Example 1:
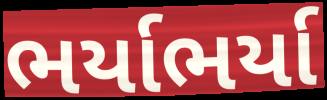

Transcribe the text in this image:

ભર્યાભર્યા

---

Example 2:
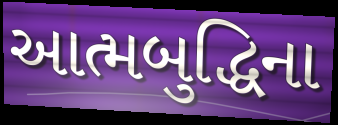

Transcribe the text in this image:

આત્મબુદ્ધિના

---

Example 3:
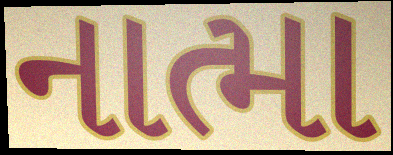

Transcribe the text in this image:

નાત્મા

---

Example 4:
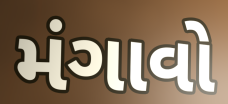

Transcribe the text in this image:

મંગાવો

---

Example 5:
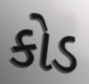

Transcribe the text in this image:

કોડ